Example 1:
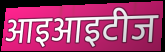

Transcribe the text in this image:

आइआइटीज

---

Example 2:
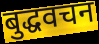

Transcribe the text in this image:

बुद्धवचन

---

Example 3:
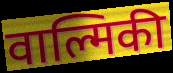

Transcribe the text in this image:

वाल्मिकी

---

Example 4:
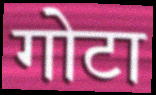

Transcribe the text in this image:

गोटा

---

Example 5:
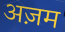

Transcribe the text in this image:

अज़म